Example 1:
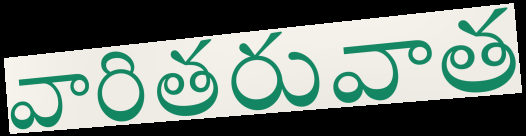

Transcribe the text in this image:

వారితరువాత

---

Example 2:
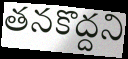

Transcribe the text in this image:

తనకొద్దని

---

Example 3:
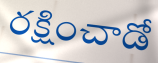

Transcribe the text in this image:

రక్షించాడో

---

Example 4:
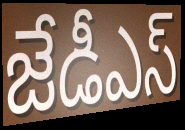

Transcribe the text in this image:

జేడీఎస్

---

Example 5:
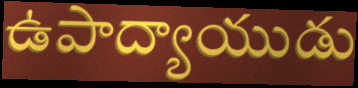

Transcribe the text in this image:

ఉపాద్యాయుడు